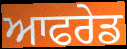
ਆਫਰੇਡ